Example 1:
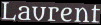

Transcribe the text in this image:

Laurent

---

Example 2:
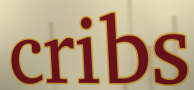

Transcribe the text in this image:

cribs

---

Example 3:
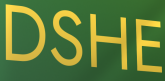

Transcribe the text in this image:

DSHE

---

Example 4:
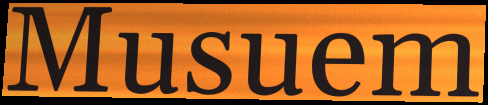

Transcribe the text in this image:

Musuem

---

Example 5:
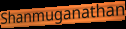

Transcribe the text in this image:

Shanmuganathan